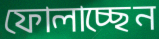
ফোলাচ্ছেন